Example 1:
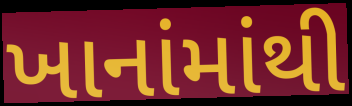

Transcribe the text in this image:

ખાનાંમાંથી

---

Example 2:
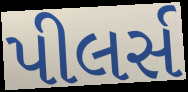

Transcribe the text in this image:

પીલર્સ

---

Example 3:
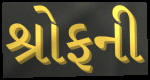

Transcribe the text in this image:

શ્રોફની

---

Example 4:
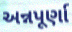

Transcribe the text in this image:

અન્નપૂર્ણા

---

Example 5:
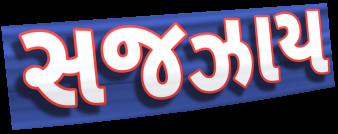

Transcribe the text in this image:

સજઝાય